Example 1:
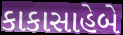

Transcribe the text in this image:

કાકાસાહેબે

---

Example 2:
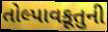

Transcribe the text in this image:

તોલ્પાવકૂતુની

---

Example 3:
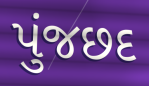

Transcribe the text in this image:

પુંજછદ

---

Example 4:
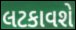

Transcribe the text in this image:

લટકાવશે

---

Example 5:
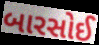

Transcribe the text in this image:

બારસોઈ